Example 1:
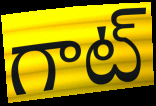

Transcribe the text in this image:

గాట్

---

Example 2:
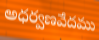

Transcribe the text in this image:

అధర్వణవేదము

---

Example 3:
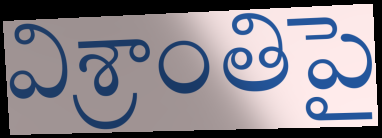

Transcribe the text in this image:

విశ్రాంతిపై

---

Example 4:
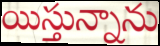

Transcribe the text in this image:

యిస్తున్నాను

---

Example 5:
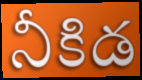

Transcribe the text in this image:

నీకిడ